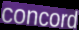
concord